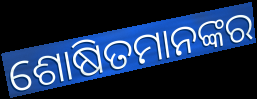
ଶୋଷିତମାନଙ୍କର